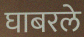
घाबरले